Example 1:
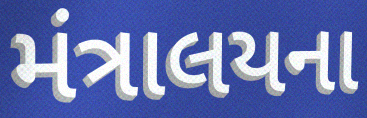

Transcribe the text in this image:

મંત્રાલયના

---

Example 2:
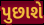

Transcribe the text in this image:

પુછાશે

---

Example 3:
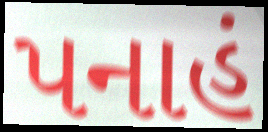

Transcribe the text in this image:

પનાહં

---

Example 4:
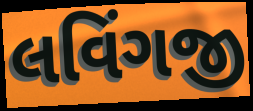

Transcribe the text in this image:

લવિંગજી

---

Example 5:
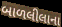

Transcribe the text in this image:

બાળલીલાના